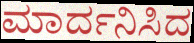
ಮಾರ್ದನಿಸಿದ